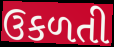
ઉકળતી